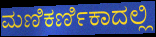
ಮಣಿಕರ್ಣಿಕಾದಲ್ಲಿ